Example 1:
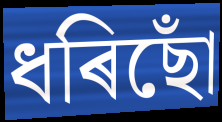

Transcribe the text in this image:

ধৰিছোঁ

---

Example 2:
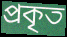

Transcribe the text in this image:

প্ৰকৃত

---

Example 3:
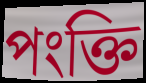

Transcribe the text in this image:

পংক্তি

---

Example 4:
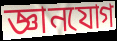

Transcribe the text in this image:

জ্ঞানযোগ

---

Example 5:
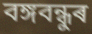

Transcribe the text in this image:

বঙ্গবন্ধুৰ